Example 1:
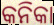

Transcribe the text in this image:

କନିକା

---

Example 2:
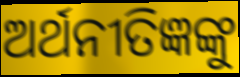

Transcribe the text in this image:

ଅର୍ଥନୀତିଜ୍ଞଙ୍କୁ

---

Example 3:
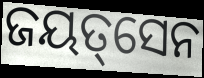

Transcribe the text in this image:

ଜୟତ୍‌ସେନ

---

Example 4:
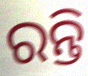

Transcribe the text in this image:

ରନ୍ତି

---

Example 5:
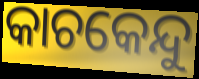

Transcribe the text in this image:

କାଚକେନ୍ଦୁ